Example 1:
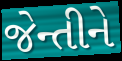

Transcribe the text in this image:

જેન્તીને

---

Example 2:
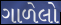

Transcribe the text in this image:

ગાળેલો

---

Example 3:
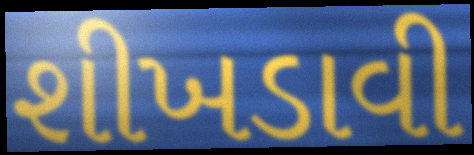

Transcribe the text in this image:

શીખડાવી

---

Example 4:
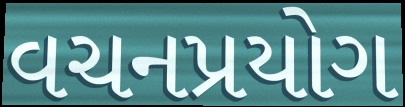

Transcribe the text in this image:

વચનપ્રયોગ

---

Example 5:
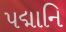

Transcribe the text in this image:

પદ્માનિ